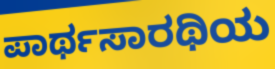
ಪಾರ್ಥಸಾರಥಿಯ